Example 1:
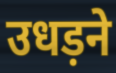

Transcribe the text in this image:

उधड़ने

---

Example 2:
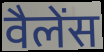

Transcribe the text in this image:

वैलेंस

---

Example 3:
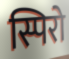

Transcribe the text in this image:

स्पिरो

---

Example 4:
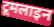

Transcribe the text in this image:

टूमलाइन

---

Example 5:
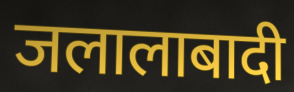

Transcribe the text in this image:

जलालाबादी